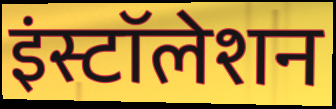
इंस्टॉलेशन